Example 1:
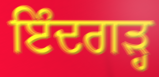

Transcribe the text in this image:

ਇੰਦਗੜ੍ਹ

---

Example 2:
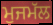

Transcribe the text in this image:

ਮੁਜਮੱਲ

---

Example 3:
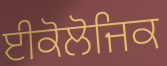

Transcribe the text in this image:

ਈਕੋਲੋਜਿਕ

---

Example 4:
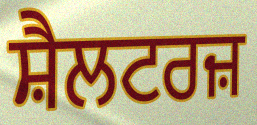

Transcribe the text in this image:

ਸ਼ੈਲਟਰਜ਼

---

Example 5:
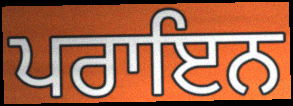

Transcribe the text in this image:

ਪਰਾਇਨ